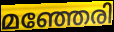
മഞ്ഞേരി